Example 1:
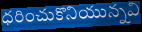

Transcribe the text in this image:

ధరించుకొనియున్నవి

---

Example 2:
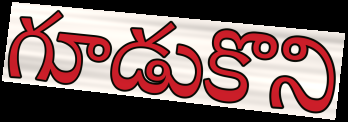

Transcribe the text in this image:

గూడుకొని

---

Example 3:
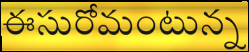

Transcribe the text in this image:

ఈసురోమంటున్న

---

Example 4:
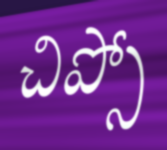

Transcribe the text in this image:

చిప్సో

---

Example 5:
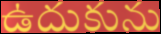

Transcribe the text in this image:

ఉదుకును